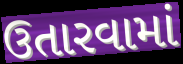
ઉતારવામાં